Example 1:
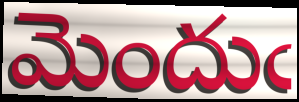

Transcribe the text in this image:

మెందుఁ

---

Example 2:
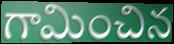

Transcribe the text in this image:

గామించిన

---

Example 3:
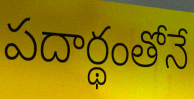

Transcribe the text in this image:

పదార్థంతోనే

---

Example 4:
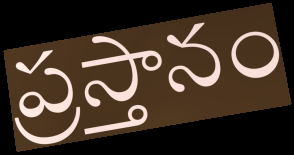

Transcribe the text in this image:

ప్రస్తానం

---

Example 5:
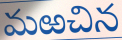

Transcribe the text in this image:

మఱచిన